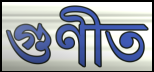
গুণীত